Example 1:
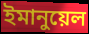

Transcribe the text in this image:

ইমানুয়েল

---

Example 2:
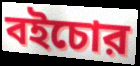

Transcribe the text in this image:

বইচোর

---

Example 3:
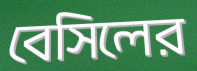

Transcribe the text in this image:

বেসিলের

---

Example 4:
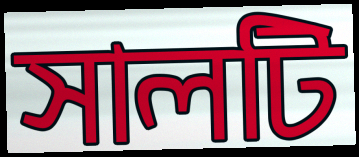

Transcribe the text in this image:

সালটি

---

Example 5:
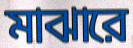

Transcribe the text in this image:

মাঝারে